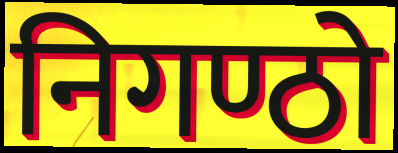
निगण्ठो